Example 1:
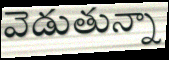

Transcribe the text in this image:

వెడుతున్నా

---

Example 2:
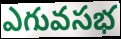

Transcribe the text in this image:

ఎగువసభ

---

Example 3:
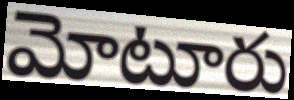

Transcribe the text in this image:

మోటూరు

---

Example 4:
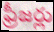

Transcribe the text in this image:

ఫ్రీజర్లు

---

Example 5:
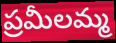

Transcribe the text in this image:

ప్రమీలమ్మ